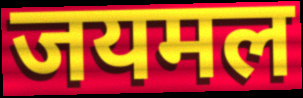
जयमल